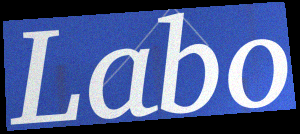
Labo